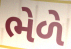
ભેળે